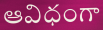
ఆవిధంగా